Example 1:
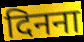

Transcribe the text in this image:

दिनना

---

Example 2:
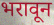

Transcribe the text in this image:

भरावून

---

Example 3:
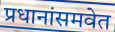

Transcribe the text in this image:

प्रधानांसमवेत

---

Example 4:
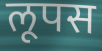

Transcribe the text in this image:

लूपस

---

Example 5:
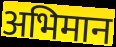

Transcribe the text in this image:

अभिमान